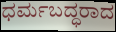
ಧರ್ಮಬದ್ಧರಾದ